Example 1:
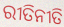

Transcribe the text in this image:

ରୀତିନୀତି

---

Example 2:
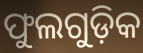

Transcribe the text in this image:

ଫୁଲଗୁଡ଼ିକ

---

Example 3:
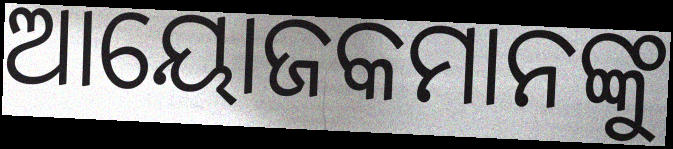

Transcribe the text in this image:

ଆୟୋଜକମାନଙ୍କୁ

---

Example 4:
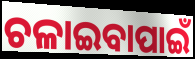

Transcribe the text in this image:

ଚଳାଇବାପାଇଁ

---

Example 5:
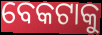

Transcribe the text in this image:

ବେକଟାକୁ